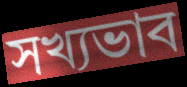
সখ্যভাব